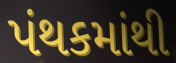
પંથકમાંથી